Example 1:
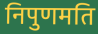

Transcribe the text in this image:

निपुणमति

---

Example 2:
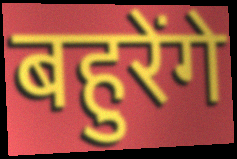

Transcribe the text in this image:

बहुरेंगे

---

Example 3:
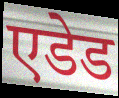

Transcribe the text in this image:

एडेड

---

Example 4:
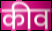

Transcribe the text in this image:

कीव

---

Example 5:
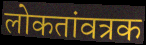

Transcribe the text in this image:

लोकतांवत्रक